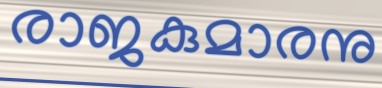
രാജകുമാരനു